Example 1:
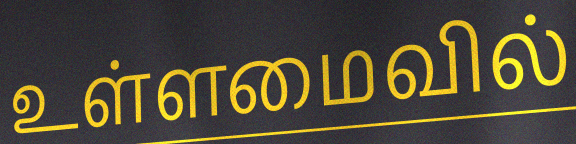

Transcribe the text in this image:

உள்ளமைவில்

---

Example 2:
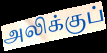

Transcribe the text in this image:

அலிக்குப்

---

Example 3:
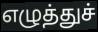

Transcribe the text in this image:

எழுத்துச்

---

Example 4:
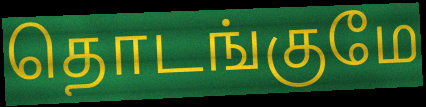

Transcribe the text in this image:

தொடங்குமே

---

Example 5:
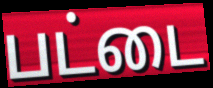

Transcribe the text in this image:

பட்டை